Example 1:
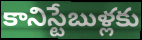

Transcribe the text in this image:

కానిస్టేబుళ్లకు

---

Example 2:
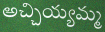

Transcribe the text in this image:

అచ్చియ్యమ్మ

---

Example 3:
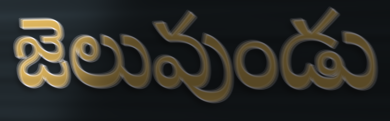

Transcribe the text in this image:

జెలువుండు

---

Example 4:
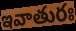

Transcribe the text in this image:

ఇవాతురః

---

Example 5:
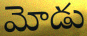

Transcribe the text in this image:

మోడు